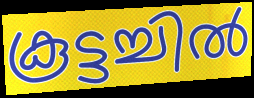
കൂട്ടച്ചിൽ